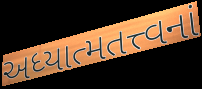
અધ્યાત્મતત્ત્વનાં